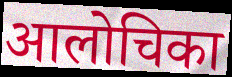
आलोचिका